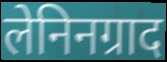
लेनिनग्राद